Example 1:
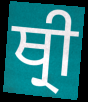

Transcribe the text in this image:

ਥ੍ਰੀ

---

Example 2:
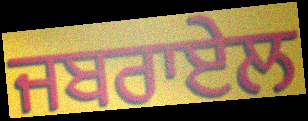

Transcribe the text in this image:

ਜਬਰਾਏਲ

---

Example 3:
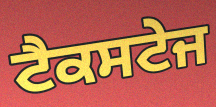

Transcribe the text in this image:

ਟੈਕਸਟੇਜ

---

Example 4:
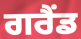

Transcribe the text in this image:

ਗਰੈਂਡ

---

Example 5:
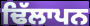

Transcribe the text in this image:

ਢਿੱਲਾਪਨ